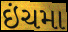
ઇંચમા